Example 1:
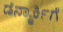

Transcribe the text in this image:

ಡೆನ್ಮಾರ್ಕಿಗೆ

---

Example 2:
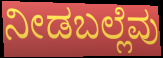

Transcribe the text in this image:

ನೀಡಬಲ್ಲೆವು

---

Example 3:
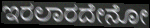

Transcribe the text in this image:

ಇರಲಾರದೇನೋ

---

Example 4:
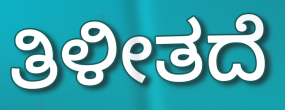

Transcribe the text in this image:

ತಿಳೀತದೆ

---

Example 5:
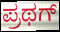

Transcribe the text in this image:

ಪ್ರಥಗ್